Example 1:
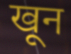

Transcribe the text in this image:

खून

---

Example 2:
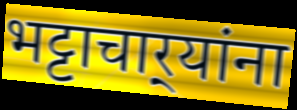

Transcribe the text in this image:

भट्टाचार्यांना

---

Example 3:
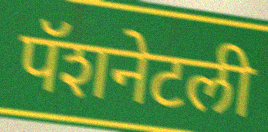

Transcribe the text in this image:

पॅशनेटली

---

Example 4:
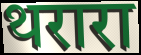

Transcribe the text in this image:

थरारा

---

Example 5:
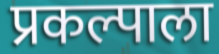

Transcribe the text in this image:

प्रकल्पाला